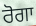
ਰੋਗਾ